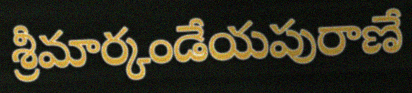
శ్రీమార్కండేయపురాణే